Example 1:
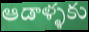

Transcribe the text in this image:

ఆడాళ్ళకు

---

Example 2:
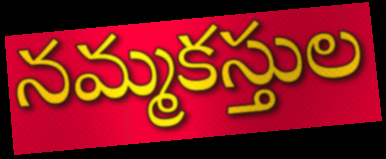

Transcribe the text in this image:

నమ్మకస్తుల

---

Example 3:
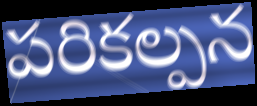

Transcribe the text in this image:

పరికల్పన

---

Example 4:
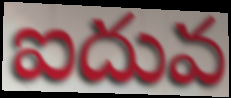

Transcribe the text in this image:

ఐదువ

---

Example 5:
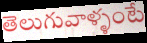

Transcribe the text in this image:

తెలుగువాళ్ళంటే